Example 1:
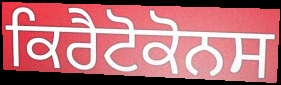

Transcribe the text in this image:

ਕਿਰੈਟੋਕੋਨਸ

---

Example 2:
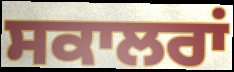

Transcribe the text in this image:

ਸਕਾਲਰਾਂ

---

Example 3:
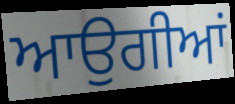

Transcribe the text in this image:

ਆਉਗੀਆਂ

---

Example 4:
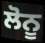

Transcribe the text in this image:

ਲੋਨੂ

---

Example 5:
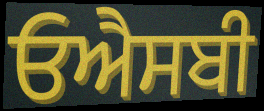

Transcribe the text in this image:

ਓਐਸਬੀ